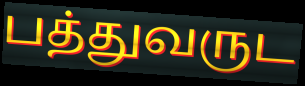
பத்துவருட